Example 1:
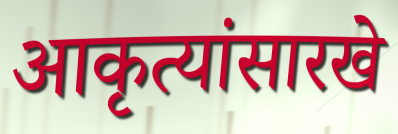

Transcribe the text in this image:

आकृत्यांसारखे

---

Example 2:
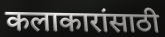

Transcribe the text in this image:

कलाकारांसाठी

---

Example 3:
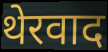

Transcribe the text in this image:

थेरवाद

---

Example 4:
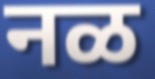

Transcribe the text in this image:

नळ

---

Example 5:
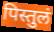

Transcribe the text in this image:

पिस्तुलं